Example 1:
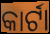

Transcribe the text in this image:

କାର୍ଟା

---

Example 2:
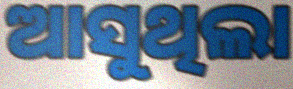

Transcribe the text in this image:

ଆସୁଥିଲା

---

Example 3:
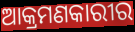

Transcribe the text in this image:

ଆକ୍ରମଣକାରୀର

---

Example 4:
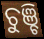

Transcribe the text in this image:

ଚୁଞ୍ଚି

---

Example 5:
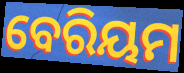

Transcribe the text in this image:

ବେରିୟମ